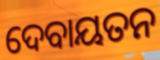
ଦେବାୟତନ